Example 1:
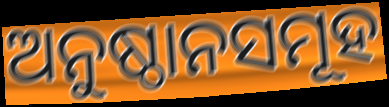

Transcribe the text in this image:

ଅନୁଷ୍ଠାନସମୂହ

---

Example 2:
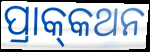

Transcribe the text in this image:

ପ୍ରାକ୍‍କଥନ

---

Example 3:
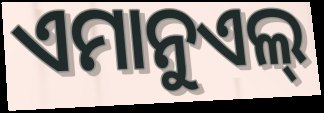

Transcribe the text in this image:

ଏମାନୁଏଲ୍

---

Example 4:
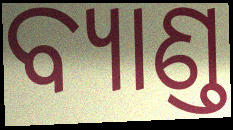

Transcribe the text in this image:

ବ୍ୟାଣ୍ଡ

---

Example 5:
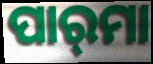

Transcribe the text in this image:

ପାର୍‌ମା